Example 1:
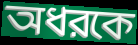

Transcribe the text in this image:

অধরকে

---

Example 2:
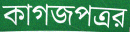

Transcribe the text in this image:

কাগজপত্রর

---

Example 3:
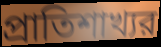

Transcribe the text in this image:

প্রাতিশাখ্যর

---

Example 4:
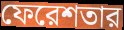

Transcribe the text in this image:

ফেরেশতার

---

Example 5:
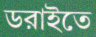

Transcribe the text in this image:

ডরাইতে